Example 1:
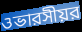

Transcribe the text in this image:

ওভারসীয়র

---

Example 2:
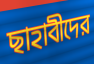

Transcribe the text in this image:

ছাহাবীদের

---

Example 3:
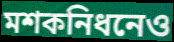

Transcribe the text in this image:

মশকনিধনেও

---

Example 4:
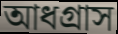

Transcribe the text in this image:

আধগ্রাস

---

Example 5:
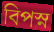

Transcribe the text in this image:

বিপস্ন